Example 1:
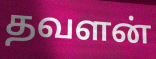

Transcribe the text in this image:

தவளன்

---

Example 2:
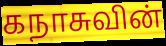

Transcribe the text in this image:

கநாசுவின்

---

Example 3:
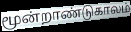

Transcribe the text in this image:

மூன்றாண்டுகாலம்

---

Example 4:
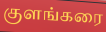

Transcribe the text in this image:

குளங்கரை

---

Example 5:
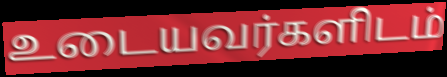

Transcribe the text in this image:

உடையவர்களிடம்